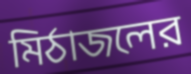
মিঠাজলের